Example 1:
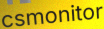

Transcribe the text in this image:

csmonitor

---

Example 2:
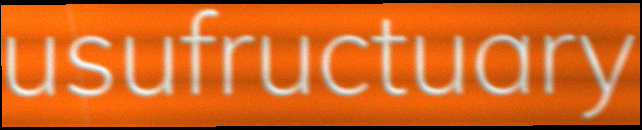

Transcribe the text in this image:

usufructuary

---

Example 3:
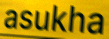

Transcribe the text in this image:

asukha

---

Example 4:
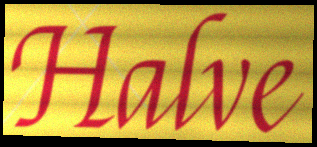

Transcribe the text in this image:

Halve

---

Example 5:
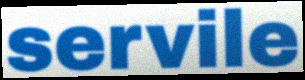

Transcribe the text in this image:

servile